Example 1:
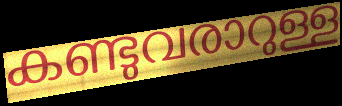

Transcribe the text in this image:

കണ്ടുവരാറുള്ള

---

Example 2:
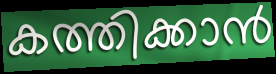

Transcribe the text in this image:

കത്തിക്കാൻ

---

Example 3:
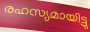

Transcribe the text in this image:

രഹസ്യമായിട്ടു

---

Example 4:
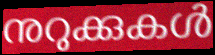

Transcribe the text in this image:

നുറുക്കുകൾ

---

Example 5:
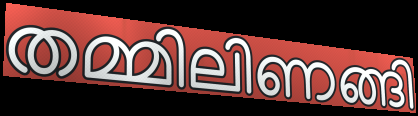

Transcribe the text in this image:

തമ്മിലിണങ്ങി